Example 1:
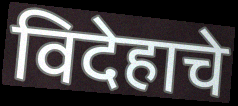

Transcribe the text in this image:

विदेहाचे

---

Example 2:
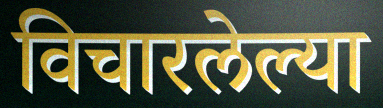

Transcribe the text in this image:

विचारलेल्या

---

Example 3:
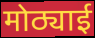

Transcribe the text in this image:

मोठ्याई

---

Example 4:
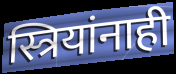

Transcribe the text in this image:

स्त्रियांनाही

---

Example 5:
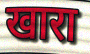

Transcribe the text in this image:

खारा